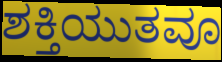
ಶಕ್ತಿಯುತವೂ